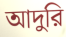
আদুরি